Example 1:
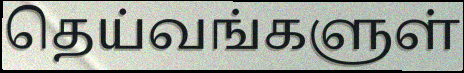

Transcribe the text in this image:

தெய்வங்களுள்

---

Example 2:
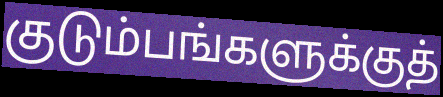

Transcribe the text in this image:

குடும்பங்களுக்குத்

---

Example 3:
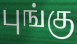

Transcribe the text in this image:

புங்கு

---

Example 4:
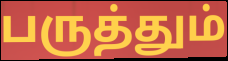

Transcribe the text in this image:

பருத்தும்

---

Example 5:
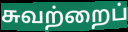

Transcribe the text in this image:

சுவற்றைப்